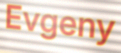
Evgeny